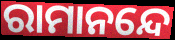
ରାମାନନ୍ଦେ